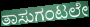
ತಾಸುಗಂಟಲೇ